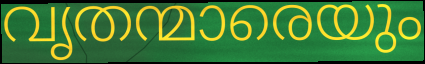
വൃതന്മാരെയും